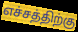
எச்சத்திற்கு